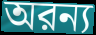
অরন্য